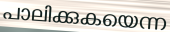
പാലിക്കുകയെന്ന